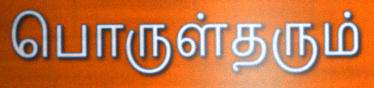
பொருள்தரும்